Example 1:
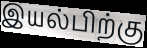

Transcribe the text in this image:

இயல்பிற்கு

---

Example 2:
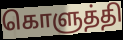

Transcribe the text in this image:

கொளுத்தி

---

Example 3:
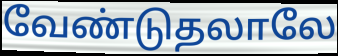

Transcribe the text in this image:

வேண்டுதலாலே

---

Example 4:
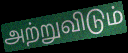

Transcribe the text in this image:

அற்றுவிடும்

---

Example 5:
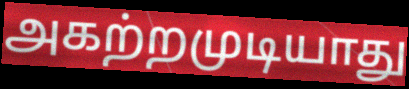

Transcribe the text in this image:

அகற்றமுடியாது